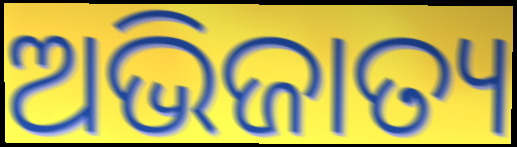
ଅଭିଜାତ୍ୟ